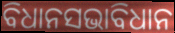
ବିଧାନସଭାବିଧାନ